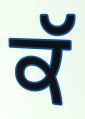
ਕੱ